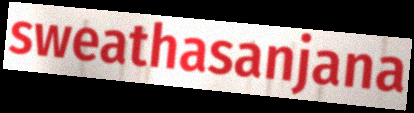
sweathasanjana